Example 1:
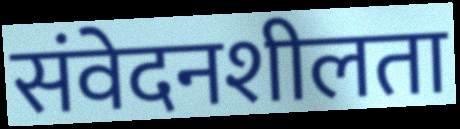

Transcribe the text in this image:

संवेदनशीलता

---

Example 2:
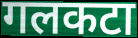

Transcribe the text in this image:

गलकटा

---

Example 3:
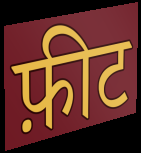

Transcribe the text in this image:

फ़ीट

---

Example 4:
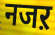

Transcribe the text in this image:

नजऱ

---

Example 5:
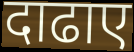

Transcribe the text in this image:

दाढाए